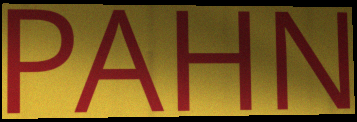
PAHN